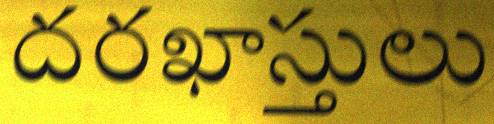
దరఖాస్తులు